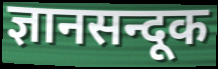
ज्ञानसन्दूक